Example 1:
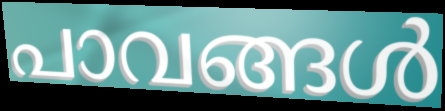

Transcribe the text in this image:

പാവങ്ങൾ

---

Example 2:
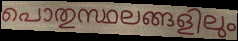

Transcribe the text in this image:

പൊതുസ്ഥലങ്ങളിലും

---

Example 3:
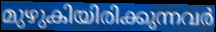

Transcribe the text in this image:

മുഴുകിയിരിക്കുന്നവർ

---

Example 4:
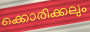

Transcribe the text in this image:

ക്കൊരിക്കലും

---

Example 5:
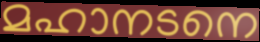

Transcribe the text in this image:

മഹാനടനെ